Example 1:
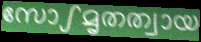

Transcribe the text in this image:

സോഽമൃതത്വായ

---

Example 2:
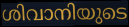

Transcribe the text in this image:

ശിവാനിയുടെ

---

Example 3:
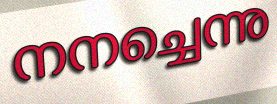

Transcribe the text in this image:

നനച്ചെന്നു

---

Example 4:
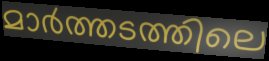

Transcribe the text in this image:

മാർത്തടത്തിലെ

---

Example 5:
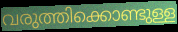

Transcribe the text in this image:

വരുത്തിക്കൊണ്ടുള്ള